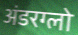
अंडरग्लो